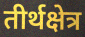
तीर्थक्षेत्र